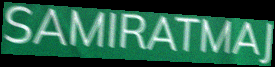
SAMIRATMAJ